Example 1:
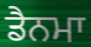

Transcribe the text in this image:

ਡੈਨਮਾ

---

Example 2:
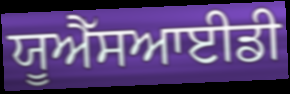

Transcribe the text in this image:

ਯੂਐੱਸਆਈਡੀ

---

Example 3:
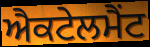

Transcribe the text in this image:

ਐਕਟੇਲਮੈਂਟ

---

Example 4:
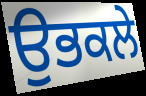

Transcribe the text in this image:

ਉਭਕਲੇ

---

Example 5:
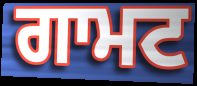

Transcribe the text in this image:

ਗਾਮਟ